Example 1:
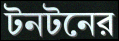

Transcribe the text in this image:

টনটনের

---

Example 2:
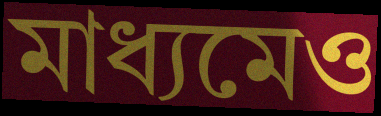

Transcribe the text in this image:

মাধ্যমেও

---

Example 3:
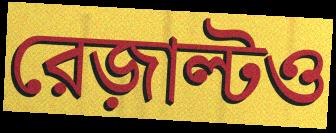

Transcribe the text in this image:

রেজ়াল্টও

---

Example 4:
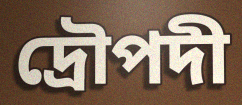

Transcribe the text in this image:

দ্রৌপদী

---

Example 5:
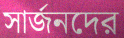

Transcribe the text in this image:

সার্জনদের